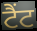
ਟੈਂਟ